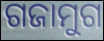
ଗଜାମୁଗ